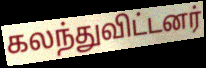
கலந்துவிட்டனர்